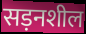
सड़नशील